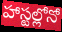
హాస్టల్లోనో